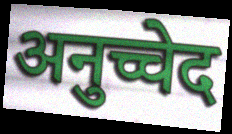
अनुच्चेद